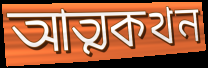
আত্মকথন